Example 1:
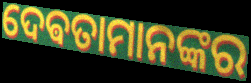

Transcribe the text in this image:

ଦେଵତାମାନଙ୍କର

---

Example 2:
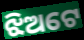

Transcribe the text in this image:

ଝିଅଟେ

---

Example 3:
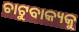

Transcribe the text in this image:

ଚାଟୁବାକ୍ୟକୁ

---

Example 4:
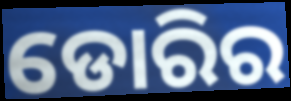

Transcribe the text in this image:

ଡୋରିର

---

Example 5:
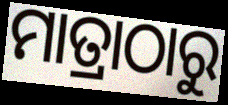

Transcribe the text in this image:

ମାତ୍ରାଠାରୁ